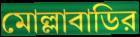
মোল্লাবাডির